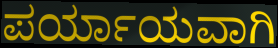
ಪರ್ಯಾಯವಾಗಿ